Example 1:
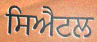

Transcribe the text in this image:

ਸਿਐਟਲ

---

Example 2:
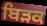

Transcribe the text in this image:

ਬਿੜਕ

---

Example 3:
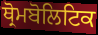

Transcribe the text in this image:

ਥ੍ਰੋਮਬੋਲਿਟਿਕ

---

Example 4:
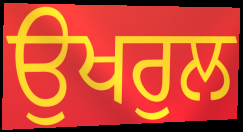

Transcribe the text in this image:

ਉਖਰੁਲ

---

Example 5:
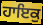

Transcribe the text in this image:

ਹਾਇਕੁ